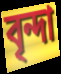
বৃন্দা